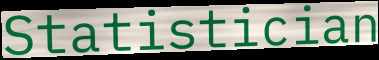
Statistician